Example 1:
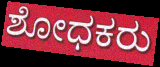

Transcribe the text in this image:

ಶೋಧಕರು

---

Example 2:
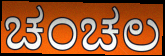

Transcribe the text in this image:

ಚಂಚಲ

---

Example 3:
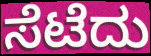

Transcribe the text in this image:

ಸೆಟೆದು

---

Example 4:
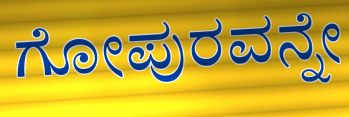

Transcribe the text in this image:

ಗೋಪುರವನ್ನೇ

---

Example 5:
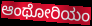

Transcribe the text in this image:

ಆಂಥೋರಿಯಂ